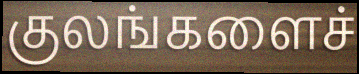
குலங்களைச்